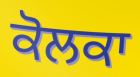
ਕੋਲਕਾ